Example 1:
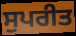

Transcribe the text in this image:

ਸੁਪਰੀਤ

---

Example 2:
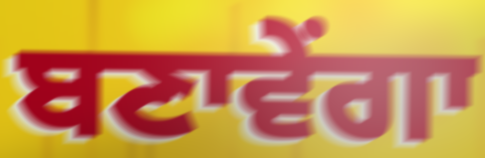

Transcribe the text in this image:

ਬਣਾਵੇਂਗਾ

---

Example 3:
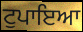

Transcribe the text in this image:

ਟੁਪਾਇਆ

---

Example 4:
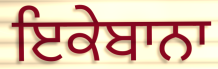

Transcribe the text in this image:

ਇਕੇਬਾਨਾ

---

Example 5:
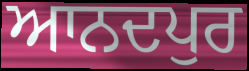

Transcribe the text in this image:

ਆਨਦਪੁਰ